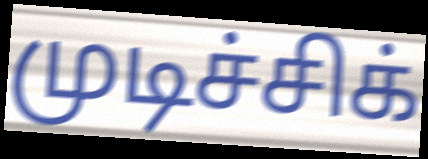
முடிச்சிக்